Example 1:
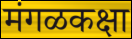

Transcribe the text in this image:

मंगळकक्षा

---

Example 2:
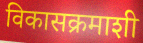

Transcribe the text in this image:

विकासक्रमाशी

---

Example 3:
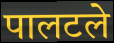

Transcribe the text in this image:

पालटले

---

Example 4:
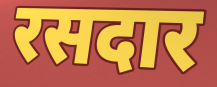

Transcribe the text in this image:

रसदार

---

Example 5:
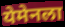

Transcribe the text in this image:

येमेनला